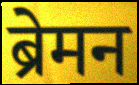
ब्रेमन